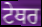
ਟੇਥਰ